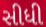
સીધી